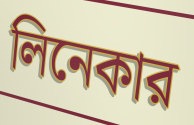
লিনেকার